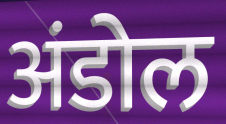
अंडोल